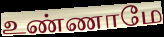
உண்ணாமே